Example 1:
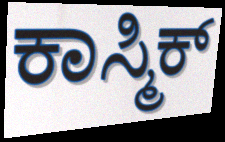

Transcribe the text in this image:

ಕಾಸ್ಮಿಕ್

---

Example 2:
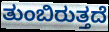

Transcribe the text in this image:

ತುಂಬಿರುತ್ತದೆ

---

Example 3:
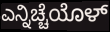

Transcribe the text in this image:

ಎನ್ನಿಚ್ಚೆಯೊಳ್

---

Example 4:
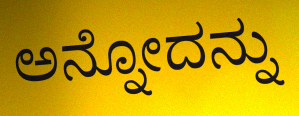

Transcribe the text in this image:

ಅನ್ನೋದನ್ನು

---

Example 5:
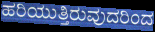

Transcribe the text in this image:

ಹರಿಯುತ್ತಿರುವುದರಿಂದ